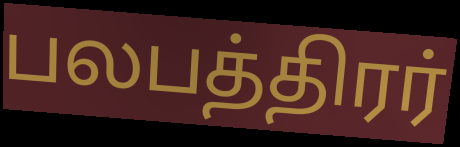
பலபத்திரர்